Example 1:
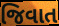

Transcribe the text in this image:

જિવાત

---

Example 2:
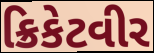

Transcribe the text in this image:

ક્રિકેટવીર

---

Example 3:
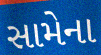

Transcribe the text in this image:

સામેના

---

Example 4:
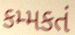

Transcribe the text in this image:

કમ્મકતં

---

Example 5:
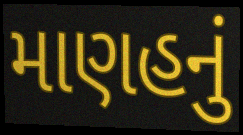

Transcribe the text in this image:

માણહનું